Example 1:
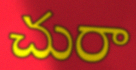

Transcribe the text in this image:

చురా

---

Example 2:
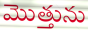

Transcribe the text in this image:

మొత్తును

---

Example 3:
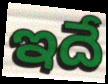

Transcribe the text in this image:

ఇదే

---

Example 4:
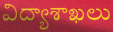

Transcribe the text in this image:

విద్యాశాఖలు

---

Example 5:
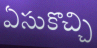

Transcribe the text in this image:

ఏసుకొచ్చి